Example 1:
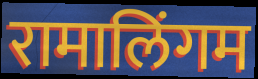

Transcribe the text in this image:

रामालिंगम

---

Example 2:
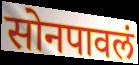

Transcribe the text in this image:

सोनपावलं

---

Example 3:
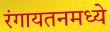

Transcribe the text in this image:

रंगायतनमध्ये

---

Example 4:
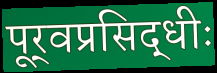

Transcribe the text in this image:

पूर्वप्रसिद्धीः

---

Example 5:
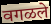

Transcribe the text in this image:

वगळले